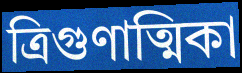
ত্রিগুণাত্মিকা